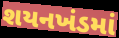
શયનખંડમાં